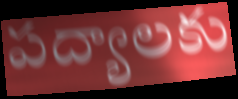
పద్యాలకు